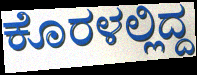
ಕೊರಳಲ್ಲಿದ್ದ